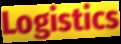
Logistics